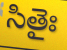
సితైః